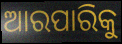
ଆରପାରିକୁ